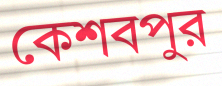
কেশবপুর